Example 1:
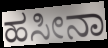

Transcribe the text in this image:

ಹಸೀನಾ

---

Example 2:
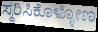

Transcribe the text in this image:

ಸ್ಮರಿಸಿಕೊಳ್ಳೋಣ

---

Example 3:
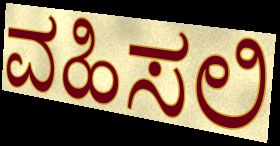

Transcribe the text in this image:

ವಹಿಸಲಿ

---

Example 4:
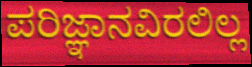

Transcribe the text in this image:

ಪರಿಜ್ಞಾನವಿರಲಿಲ್ಲ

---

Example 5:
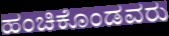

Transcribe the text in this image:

ಹಂಚಿಕೊಂಡವರು